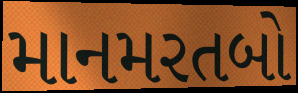
માનમરતબો